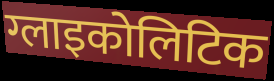
ग्लाइकोलिटिक